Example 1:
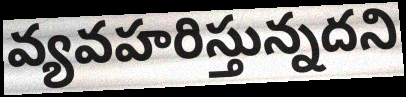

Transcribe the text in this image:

వ్యవహరిస్తున్నదని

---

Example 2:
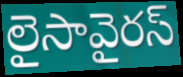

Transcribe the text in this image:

లైసావైరస్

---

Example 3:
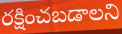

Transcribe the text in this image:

రక్షించబడాలని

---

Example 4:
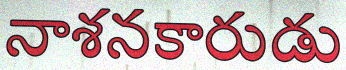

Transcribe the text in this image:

నాశనకారుడు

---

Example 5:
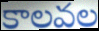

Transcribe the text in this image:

కాలవల